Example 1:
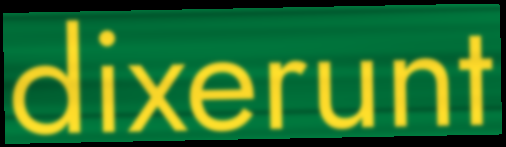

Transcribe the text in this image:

dixerunt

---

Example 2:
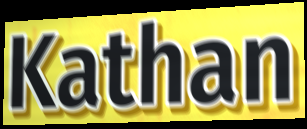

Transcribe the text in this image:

Kathan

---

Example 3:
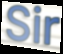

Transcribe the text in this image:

Sir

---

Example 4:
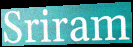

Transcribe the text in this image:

Sriram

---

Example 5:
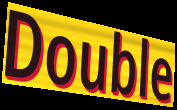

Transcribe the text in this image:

Double